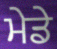
ਮੇਡੇ